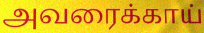
அவரைக்காய்